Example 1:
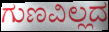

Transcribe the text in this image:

ಗುಣವಿಲ್ಲದ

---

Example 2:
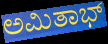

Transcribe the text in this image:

ಅಮಿತಾಭ್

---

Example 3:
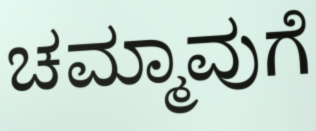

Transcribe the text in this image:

ಚಮ್ಮಾವುಗೆ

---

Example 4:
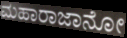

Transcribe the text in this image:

ಮಹಾರಾಜಾನೋ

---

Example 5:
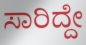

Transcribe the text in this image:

ಸಾರಿದ್ದೇ